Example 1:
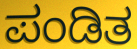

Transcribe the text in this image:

ಪಂಡಿತ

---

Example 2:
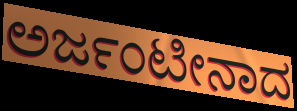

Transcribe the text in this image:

ಅರ್ಜಂಟೀನಾದ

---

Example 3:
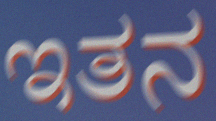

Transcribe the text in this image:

ಇತನ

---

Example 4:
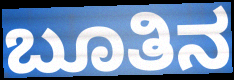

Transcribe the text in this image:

ಬೂತಿನ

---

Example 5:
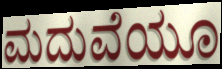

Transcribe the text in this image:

ಮದುವೆಯೂ